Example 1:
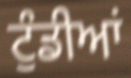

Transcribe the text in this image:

ਟੁੰਡੀਆਂ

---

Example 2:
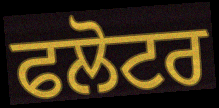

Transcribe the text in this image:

ਫਲੋਟਰ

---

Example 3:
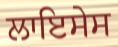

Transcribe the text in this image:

ਲਾਇਸੇਸ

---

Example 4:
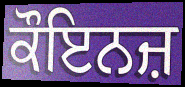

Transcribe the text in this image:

ਕੌਇਨਜ਼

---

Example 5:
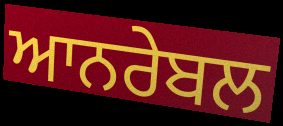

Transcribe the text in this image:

ਆਨਰੇਬਲ